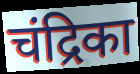
चंद्रिका